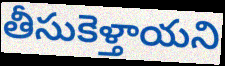
తీసుకెళ్తాయని